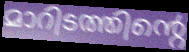
മാറിടത്തിന്റെ